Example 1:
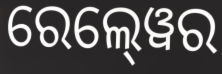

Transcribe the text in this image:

ରେଲ୍‍ୱେର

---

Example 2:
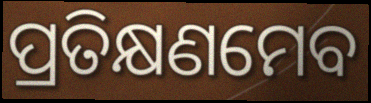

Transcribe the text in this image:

ପ୍ରତିକ୍ଷଣମେବ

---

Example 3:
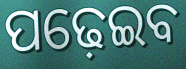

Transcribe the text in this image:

ପଢ଼େଇବ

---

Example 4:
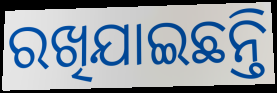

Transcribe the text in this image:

ରଖିଯାଇଛନ୍ତି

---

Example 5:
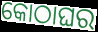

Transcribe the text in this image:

କୋଠାଘର